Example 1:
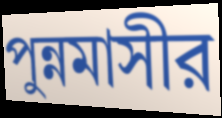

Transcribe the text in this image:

পুন্নমাসীর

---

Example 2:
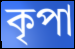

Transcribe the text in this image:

কৃপা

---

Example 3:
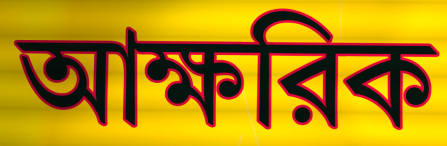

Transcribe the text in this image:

আক্ষরিক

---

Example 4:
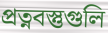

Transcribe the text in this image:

প্রত্নবস্তুগুলি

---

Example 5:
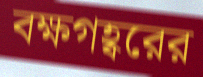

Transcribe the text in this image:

বক্ষগহ্বরের